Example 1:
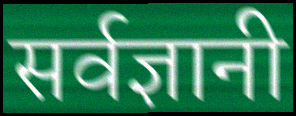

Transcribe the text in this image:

सर्वज्ञानी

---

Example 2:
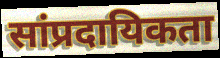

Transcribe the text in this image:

सांप्रदायिकता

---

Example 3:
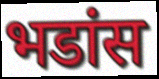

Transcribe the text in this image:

भडांस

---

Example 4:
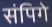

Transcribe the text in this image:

संपिगे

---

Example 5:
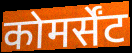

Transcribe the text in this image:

कोमर्सेंट